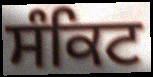
ਸੰਕਿਟ